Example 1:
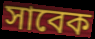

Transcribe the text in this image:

সাবেক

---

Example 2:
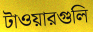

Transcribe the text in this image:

টাওয়ারগুলি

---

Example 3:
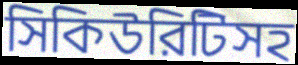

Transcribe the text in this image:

সিকিউরিটিসহ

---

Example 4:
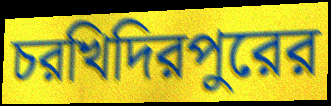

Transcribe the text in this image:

চরখিদিরপুরের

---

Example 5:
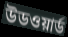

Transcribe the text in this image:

উডওয়ার্ড